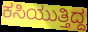
ಕಸಿಯುತ್ತಿದ್ದ